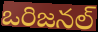
ఒరిజనల్